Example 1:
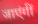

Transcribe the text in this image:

जाएंगीं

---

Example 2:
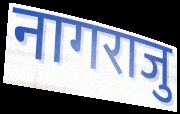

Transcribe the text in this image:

नागराजु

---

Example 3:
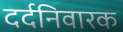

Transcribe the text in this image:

दर्दनिवारक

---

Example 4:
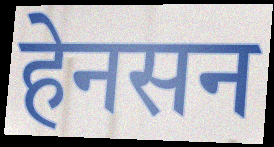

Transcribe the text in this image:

हेनसन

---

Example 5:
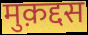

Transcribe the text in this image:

मुक़द्दस